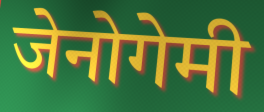
जेनोगेमी